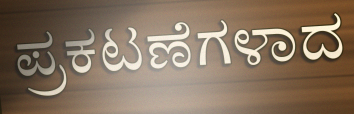
ಪ್ರಕಟಣೆಗಳಾದ